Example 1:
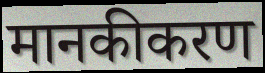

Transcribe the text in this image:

मानकीकरण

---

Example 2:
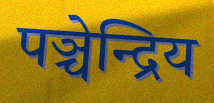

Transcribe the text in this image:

पञ्चेन्द्रिय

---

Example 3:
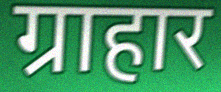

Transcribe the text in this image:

ग्राहार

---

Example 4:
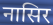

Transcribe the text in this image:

नासिर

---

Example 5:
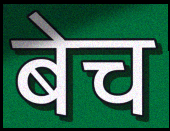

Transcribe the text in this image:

बेच